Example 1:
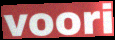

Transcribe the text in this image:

voori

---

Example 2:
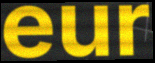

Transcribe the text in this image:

eur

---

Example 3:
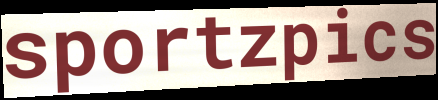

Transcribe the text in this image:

sportzpics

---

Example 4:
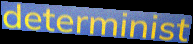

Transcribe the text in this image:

determinist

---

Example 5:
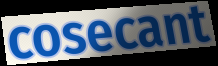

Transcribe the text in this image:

cosecant